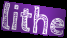
lithe